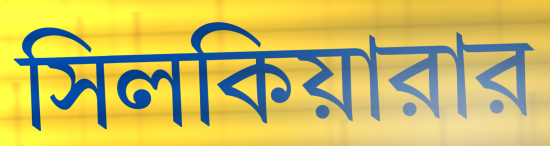
সিলকিয়ারার